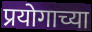
प्रयोगाच्या